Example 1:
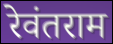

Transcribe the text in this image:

रेवंतराम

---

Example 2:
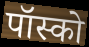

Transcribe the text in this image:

पॉस्को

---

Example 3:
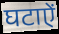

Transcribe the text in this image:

घटाऐं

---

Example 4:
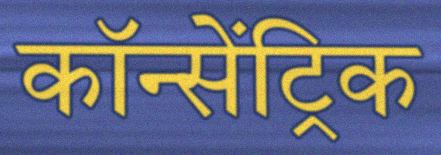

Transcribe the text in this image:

कॉन्सेंट्रिक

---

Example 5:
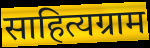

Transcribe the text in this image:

साहित्यग्राम